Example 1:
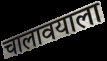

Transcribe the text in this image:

चालावयाला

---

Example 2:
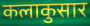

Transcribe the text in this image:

कलाकुसार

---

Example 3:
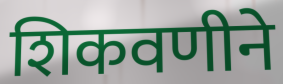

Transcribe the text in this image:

शिकवणीने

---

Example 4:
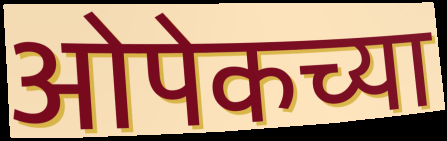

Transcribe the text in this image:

ओपेकच्या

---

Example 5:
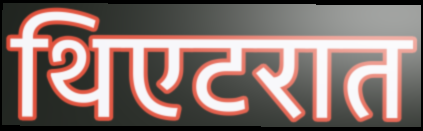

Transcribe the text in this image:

थिएटरात